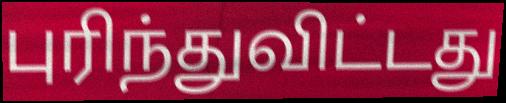
புரிந்துவிட்டது